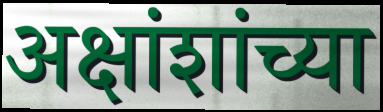
अक्षांशांच्या